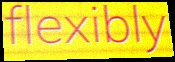
flexibly